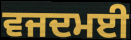
ਵਜਦਮਈ